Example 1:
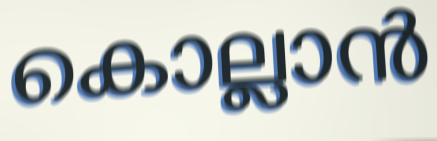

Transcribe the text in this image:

കൊല്ലാൻ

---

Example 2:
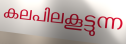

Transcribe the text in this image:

കലപിലകൂട്ടുന്ന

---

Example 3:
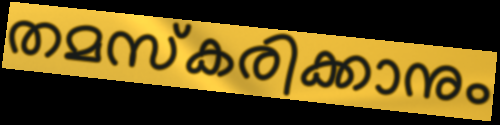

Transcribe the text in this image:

തമസ്കരിക്കാനും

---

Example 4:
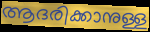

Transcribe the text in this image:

ആദരിക്കാനുള്ള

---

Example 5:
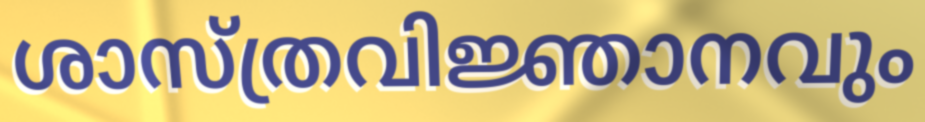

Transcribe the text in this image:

ശാസ്ത്രവിജ്ഞാനവും